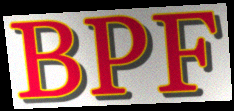
BPF